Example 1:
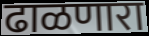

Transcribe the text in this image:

ढाळणारा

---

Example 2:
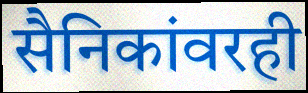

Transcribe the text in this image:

सैनिकांवरही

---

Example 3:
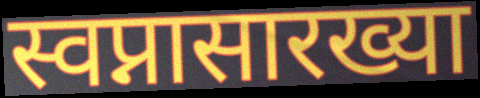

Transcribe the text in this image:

स्वप्नासारख्या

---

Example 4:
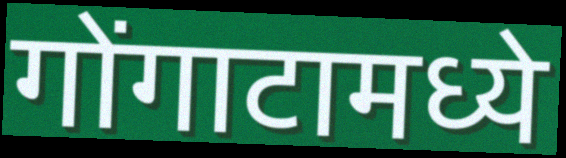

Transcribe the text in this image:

गोंगाटामध्ये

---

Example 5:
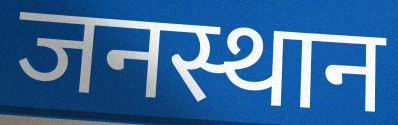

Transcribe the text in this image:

जनस्थान